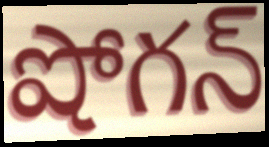
షోగన్